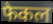
फेकल